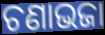
ଚଣାଭଜା